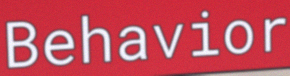
Behavior